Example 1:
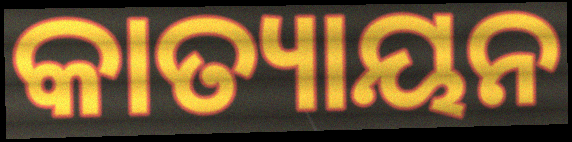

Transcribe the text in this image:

କାତ୍ୟାୟନ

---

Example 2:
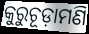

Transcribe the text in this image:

କୁରୁଚୂଡ଼ାମଣି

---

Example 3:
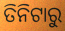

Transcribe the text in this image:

ତିନିଟାରୁ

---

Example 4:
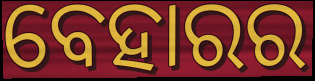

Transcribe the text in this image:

ବେହାରର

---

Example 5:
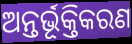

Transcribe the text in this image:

ଅନ୍ତର୍ଭୂକ୍ତିକରଣ